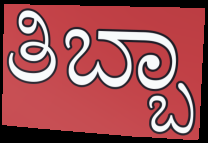
ತಿಬ್ಬಾ